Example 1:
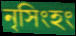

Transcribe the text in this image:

নৃসিংহং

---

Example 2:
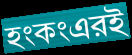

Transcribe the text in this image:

হংকংএরই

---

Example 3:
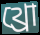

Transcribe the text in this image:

থ্রো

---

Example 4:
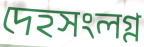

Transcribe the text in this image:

দেহসংলগ্ন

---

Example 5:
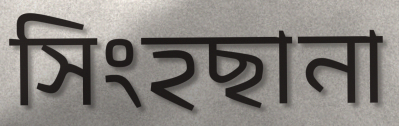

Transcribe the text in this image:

সিংহছানা